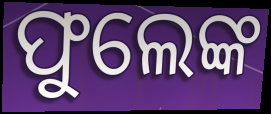
ଫୁଲେଙ୍କ